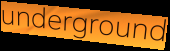
underground